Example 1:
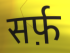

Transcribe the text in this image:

सर्फ़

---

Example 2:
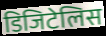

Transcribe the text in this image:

डिजिटेलिस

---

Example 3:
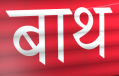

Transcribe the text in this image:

बाथ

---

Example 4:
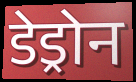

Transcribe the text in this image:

डेड्रोन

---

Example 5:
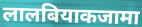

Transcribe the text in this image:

लालबियाकजामा